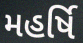
મહર્ષિ